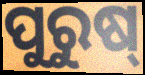
ପୁରୁଷ୍